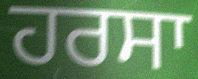
ਹਰਸਾ